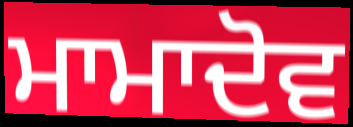
ਮਾਮਾਦੋਵ